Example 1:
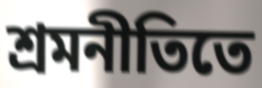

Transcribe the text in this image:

শ্রমনীতিতে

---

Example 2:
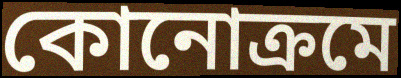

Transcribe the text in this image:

কোনোক্রমে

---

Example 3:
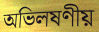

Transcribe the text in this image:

অভিলষণীয়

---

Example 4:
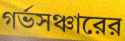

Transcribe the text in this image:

গর্ভসঞ্চারের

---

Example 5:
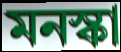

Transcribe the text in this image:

মনস্কা